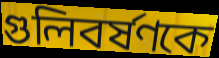
গুলিবর্ষণকে